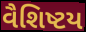
વૈશિષ્ટય